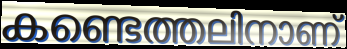
കണ്ടെത്തലിനാണ്